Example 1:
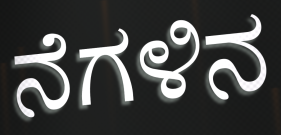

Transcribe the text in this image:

ನೆಗಳಿನ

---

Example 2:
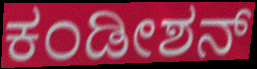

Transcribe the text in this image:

ಕಂಡೀಶನ್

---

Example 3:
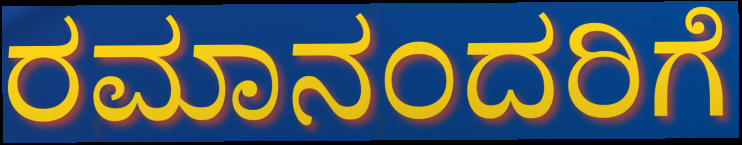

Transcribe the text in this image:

ರಮಾನಂದರಿಗೆ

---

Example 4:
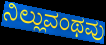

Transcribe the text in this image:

ನಿಲ್ಲುವಂಥವು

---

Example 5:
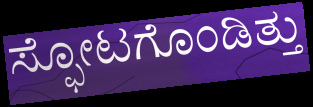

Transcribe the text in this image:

ಸ್ಫೋಟಗೊಂಡಿತ್ತು